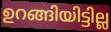
ഉറങ്ങിയിട്ടില്ല